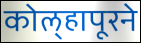
कोल्हापूरने